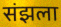
संझला